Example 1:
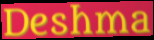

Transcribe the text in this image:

Deshma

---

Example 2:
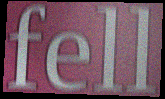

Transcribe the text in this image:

fell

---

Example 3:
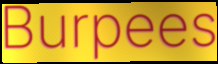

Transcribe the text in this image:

Burpees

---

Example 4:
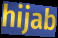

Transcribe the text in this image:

hijab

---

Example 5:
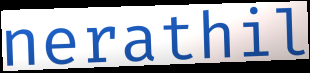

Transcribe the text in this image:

nerathil